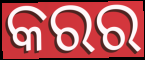
କରର